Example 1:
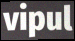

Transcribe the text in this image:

vipul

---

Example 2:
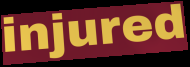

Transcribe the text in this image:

injured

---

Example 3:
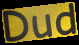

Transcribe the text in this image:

Dud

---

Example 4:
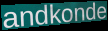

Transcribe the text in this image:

andkonde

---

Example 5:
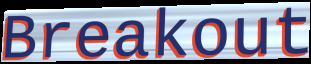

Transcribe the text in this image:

Breakout